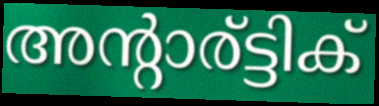
അന്റാര്ട്ടിക്